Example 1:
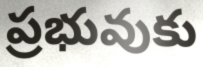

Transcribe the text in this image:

ప్రభువుకు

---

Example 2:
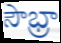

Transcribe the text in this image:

సౌభ్రా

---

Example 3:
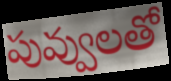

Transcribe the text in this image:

పువ్వులతో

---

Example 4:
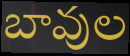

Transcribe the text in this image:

బావుల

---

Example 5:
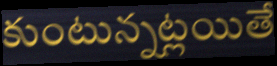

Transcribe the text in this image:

కుంటున్నట్లయితే